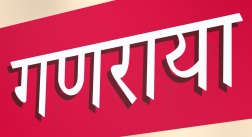
गणराया